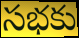
సభకు